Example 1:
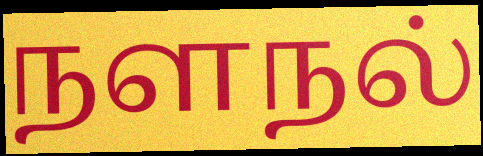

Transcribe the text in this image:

நளநல்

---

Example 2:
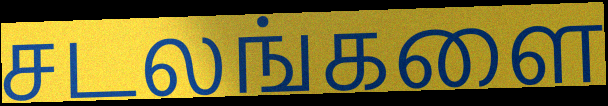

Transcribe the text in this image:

சடலங்களை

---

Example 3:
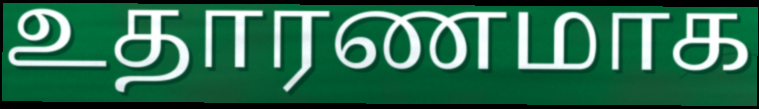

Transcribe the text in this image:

உதாரணமாக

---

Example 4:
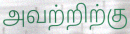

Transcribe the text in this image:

அவற்றிற்கு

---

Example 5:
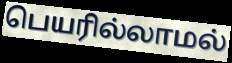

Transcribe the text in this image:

பெயரில்லாமல்